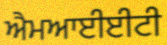
ਐਮਆਈਈਟੀ